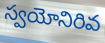
స్వయోనిరివ